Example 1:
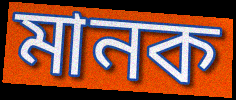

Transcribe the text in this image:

মানক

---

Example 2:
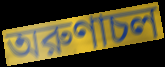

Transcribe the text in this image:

অরুণাচল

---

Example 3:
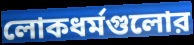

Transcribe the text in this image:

লোকধর্মগুলোর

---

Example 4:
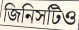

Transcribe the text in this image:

জিনিসটিও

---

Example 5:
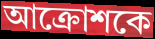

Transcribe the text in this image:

আক্রোশকে